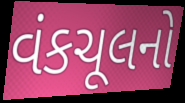
વંકચૂલનો